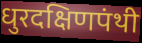
धुरदक्षिणपंथी